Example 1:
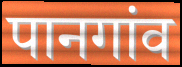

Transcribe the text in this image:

पानगांव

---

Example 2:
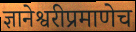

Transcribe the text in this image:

ज्ञानेश्वरीप्रमाणेच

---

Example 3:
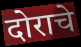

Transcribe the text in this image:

दोराचे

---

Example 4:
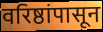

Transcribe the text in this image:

वरिष्ठांपासून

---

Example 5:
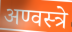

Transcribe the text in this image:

अण्वस्त्रे